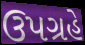
ઉપગ્રહે